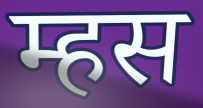
म्हस